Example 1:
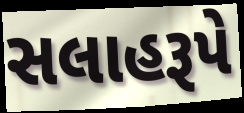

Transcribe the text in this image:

સલાહરૂપે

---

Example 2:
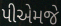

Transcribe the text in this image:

પીએમજે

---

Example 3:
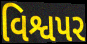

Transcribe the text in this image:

વિશ્વપર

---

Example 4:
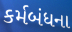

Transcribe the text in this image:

કર્મબંધના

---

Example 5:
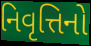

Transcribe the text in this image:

નિવૃત્તિનો